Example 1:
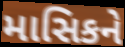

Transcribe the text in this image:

માસિકને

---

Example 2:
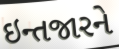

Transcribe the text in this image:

ઇન્તજારને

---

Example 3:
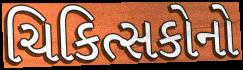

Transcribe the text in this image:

ચિકિત્સકોનો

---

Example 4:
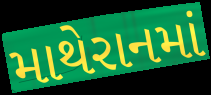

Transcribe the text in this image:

માથેરાનમાં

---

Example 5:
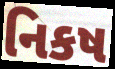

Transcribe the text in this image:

નિકષ